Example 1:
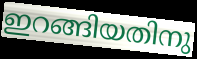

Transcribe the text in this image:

ഇറങ്ങിയതിനു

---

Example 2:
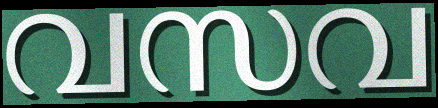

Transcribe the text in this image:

വസവ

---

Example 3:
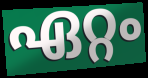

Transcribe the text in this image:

ഏറ്റം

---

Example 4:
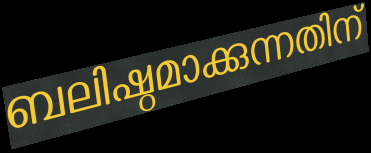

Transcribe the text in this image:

ബലിഷ്ഠമാക്കുന്നതിന്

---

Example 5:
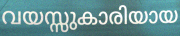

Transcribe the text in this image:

വയസ്സുകാരിയായ